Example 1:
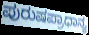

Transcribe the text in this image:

ಪುರುಷಪ್ರಾಧಾನ್ಯ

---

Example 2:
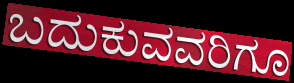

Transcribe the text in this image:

ಬದುಕುವವರಿಗೂ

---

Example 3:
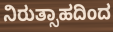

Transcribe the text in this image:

ನಿರುತ್ಸಾಹದಿಂದ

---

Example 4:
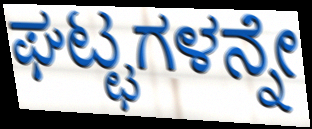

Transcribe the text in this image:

ಘಟ್ಟಗಳನ್ನೇ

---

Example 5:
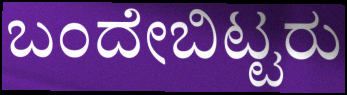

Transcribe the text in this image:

ಬಂದೇಬಿಟ್ಟರು